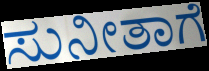
ಸುನೀತಾಗೆ